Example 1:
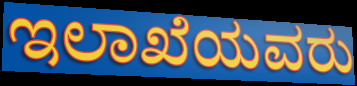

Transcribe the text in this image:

ಇಲಾಖೆಯವರು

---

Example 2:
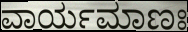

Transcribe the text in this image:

ವಾರ್ಯಮಾಣಃ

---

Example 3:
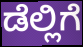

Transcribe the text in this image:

ಡೆಲ್ಲಿಗೆ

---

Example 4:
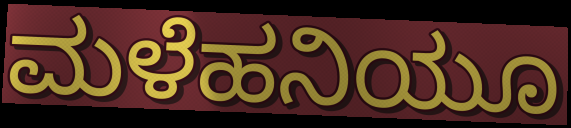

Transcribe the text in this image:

ಮಳೆಹನಿಯೂ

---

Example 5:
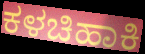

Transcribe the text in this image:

ಕಳಚಿಹಾಕಿ